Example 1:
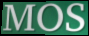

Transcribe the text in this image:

MOS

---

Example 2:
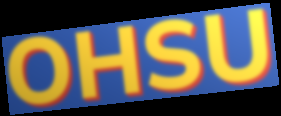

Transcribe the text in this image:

OHSU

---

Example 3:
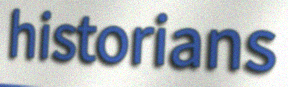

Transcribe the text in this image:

historians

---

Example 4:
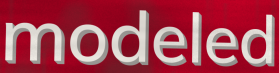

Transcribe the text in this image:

modeled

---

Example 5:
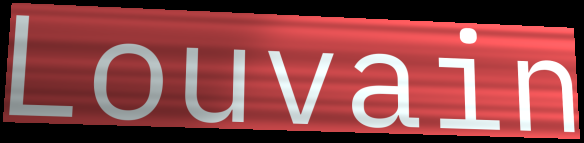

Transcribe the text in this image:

Louvain